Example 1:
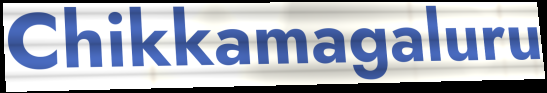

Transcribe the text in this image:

Chikkamagaluru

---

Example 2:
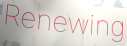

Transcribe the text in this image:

Renewing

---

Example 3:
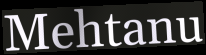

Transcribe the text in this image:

Mehtanu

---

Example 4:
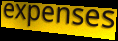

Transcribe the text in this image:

expenses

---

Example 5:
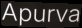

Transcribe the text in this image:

Apurva